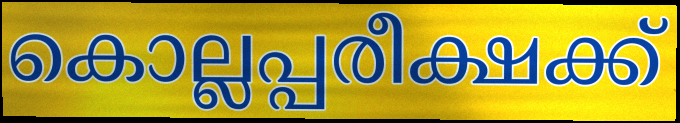
കൊല്ലപ്പരീക്ഷക്ക്